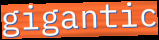
gigantic